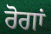
ਰੋਗਾਂ